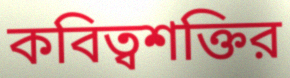
কবিত্বশক্তির